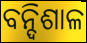
ବନ୍ଦିଶାଳ